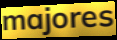
majores